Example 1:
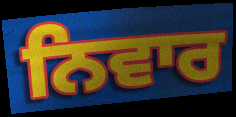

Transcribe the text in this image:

ਨਿਵਾਰ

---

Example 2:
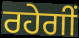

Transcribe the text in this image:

ਰਹੇਗੀਂ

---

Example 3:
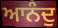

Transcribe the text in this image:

ਆਨੰਦੁ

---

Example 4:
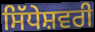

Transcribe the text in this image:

ਸਿੱਧੇਸ਼ਵਰੀ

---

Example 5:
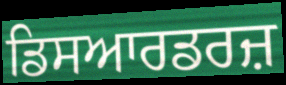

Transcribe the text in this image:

ਡਿਸਆਰਡਰਜ਼